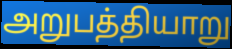
அறுபத்தியாறு